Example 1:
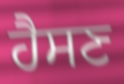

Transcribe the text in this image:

ਹੈਸਣ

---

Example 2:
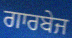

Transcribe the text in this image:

ਗਾਰਬੇਜ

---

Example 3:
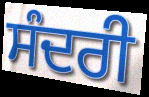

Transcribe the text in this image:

ਸੰਦਰੀ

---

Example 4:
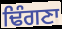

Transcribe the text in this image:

ਢਿੰਗਣਾ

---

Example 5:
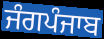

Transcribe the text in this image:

ਜੰਗਪੰਜਾਬ